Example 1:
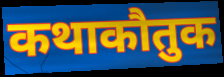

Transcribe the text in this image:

कथाकौतुक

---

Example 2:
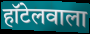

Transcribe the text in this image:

हॉटेलवाला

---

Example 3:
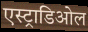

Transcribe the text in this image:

एस्ट्राडिओल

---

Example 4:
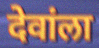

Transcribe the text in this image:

देवांला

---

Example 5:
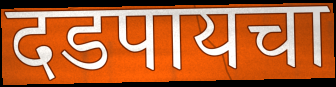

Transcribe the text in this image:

दडपायचा